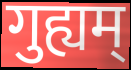
गुह्यम्